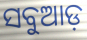
ସବୁଆଡ଼